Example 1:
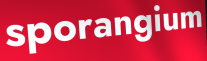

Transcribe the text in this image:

sporangium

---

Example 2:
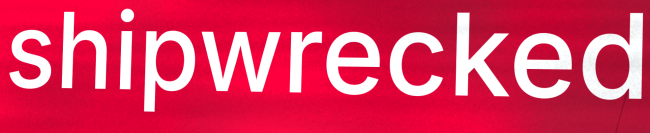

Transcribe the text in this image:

shipwrecked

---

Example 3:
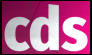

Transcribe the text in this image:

cds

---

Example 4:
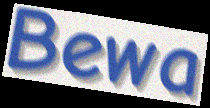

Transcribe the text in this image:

Bewa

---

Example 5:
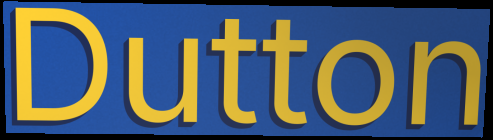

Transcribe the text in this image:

Dutton